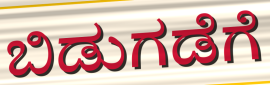
ಬಿಡುಗಡೆಗೆ